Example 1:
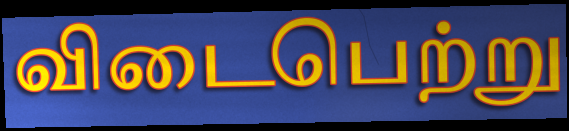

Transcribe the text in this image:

விடைபெற்று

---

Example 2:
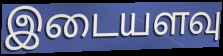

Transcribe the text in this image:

இடையளவு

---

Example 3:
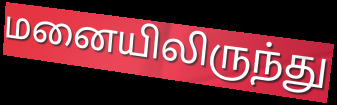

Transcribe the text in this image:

மனையிலிருந்து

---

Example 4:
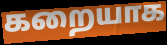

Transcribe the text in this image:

கறையாக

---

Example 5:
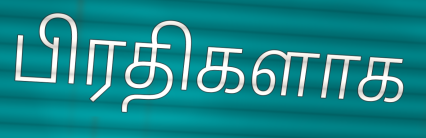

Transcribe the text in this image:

பிரதிகளாக